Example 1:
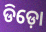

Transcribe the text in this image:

ଡିଡ଼ୋ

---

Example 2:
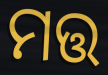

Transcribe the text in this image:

ମତ୍ତ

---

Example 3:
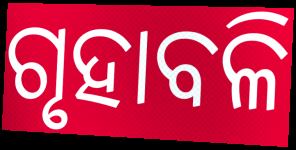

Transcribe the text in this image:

ଗୃହାବଳି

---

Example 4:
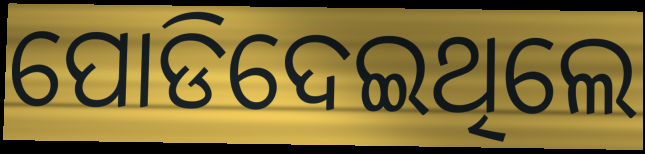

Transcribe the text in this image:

ପୋଡିଦେଇଥିଲେ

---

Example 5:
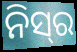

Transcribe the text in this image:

ନିସ୍‌ର